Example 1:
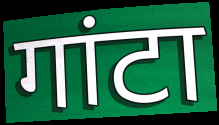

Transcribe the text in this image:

गांटा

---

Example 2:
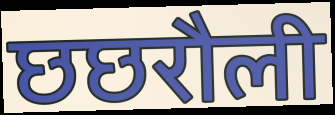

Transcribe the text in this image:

छछरौली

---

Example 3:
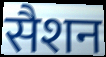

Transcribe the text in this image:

सैशन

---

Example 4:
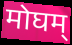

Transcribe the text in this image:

मोघम्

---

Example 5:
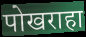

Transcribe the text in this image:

पोखराहा